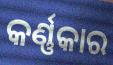
କର୍ଣ୍ଣକାର